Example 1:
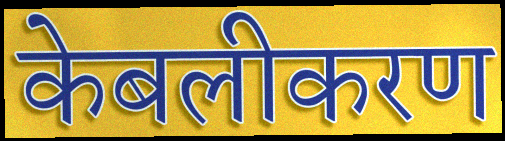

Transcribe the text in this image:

केबलीकरण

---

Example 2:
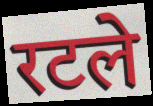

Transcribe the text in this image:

रटले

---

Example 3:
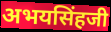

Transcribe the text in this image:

अभयसिंहजी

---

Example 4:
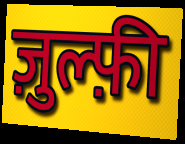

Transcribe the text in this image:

ज़ुल्फ़ी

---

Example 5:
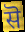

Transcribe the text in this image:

सॆ